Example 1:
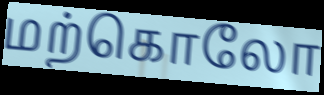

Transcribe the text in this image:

மற்கொலோ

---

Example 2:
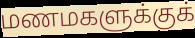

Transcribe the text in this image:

மணமகளுக்குக்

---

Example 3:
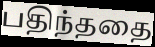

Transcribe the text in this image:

பதிந்ததை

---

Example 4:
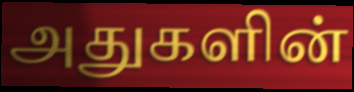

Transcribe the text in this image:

அதுகளின்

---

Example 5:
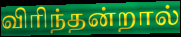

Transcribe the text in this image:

விரிந்தன்றால்